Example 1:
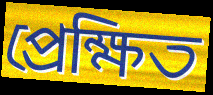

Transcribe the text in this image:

প্রেক্ষিত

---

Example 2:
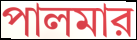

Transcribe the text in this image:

পালমার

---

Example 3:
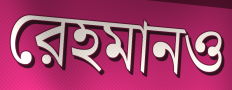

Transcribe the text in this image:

রেহমানও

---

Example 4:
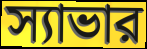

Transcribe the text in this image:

স্যাভার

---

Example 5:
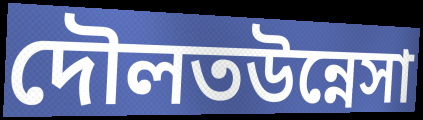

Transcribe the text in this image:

দৌলতউন্নেসা